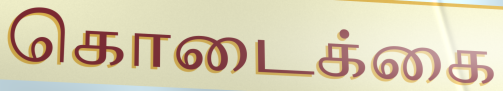
கொடைக்கை